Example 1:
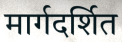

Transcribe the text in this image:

मार्गदर्शित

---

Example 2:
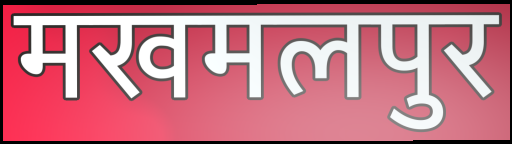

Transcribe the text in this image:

मखमलपुर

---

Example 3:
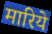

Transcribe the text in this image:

मारिये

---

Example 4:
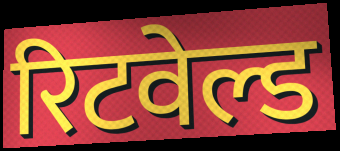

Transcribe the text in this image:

रिटवेल्ड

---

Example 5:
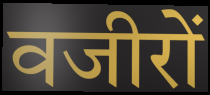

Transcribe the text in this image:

वजीरों